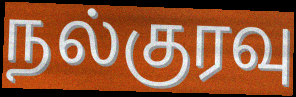
நல்குரவு